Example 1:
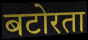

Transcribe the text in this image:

बटोरता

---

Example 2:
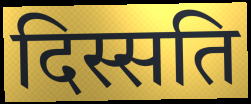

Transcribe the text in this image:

दिस्सति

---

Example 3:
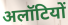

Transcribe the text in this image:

अलॉटियों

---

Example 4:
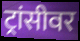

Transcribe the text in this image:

ट्रांसीवर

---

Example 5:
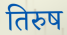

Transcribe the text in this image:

तिरुष